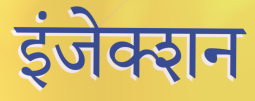
इंजेक्शन